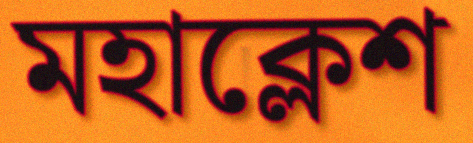
মহাক্লেশ